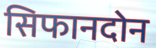
सिफानदोन